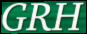
GRH